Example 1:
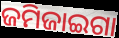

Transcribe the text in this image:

ଜମିଜାଇଗା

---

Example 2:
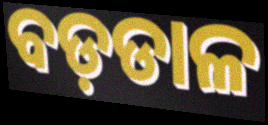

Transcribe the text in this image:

ବଡ଼ଡାଳ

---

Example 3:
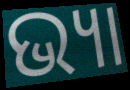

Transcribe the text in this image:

ଭ୍ୟା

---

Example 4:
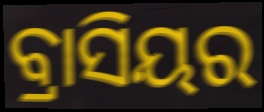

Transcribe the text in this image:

ବ୍ରାସିୟର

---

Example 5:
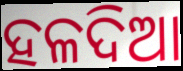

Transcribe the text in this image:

ହଳଦିଆ